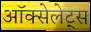
ऑक्सेलेट्स